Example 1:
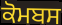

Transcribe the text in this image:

ਕੋਮਬਸ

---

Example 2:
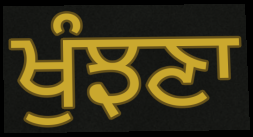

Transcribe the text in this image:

ਖੁੰਝਣਾ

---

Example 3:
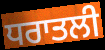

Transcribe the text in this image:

ਧਰਾਤਲੀ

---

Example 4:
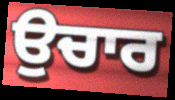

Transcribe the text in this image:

ਉਚਾਰ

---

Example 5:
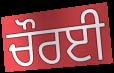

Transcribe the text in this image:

ਚੌਰਈ